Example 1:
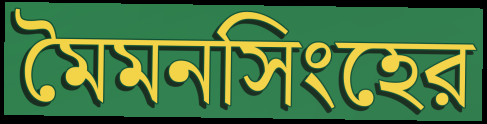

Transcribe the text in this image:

মৈমনসিংহের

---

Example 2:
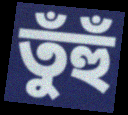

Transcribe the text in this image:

তুঁহুঁ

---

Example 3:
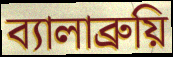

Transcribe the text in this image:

ব্যালাব্রুয়ি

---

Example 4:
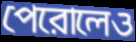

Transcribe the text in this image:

পেরোলেও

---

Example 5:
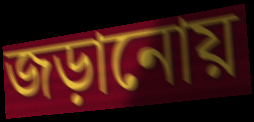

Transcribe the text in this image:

জড়ানোয়